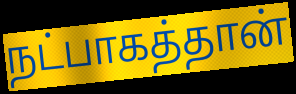
நட்பாகத்தான்